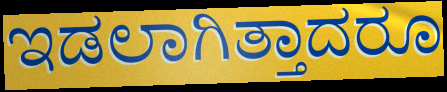
ಇಡಲಾಗಿತ್ತಾದರೂ